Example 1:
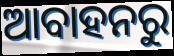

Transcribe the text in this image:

ଆବାହନରୁ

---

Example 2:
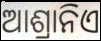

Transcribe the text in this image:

ଆଶ୍ରାନିଏ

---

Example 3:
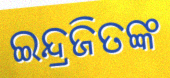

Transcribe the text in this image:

ଇନ୍ଦ୍ରଜିତଙ୍କ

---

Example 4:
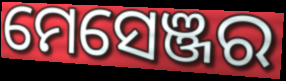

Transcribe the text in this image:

ମେସେଞ୍ଜର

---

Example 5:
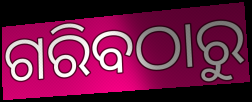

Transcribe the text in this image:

ଗରିବଠାରୁ